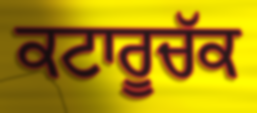
ਕਟਾਰੂਚੱਕ